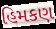
હિમકણ